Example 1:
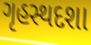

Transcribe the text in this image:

ગૃહસ્થદશા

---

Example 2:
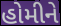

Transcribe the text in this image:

હોમીને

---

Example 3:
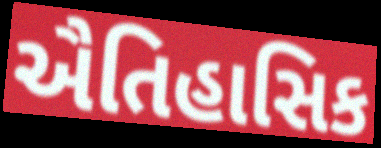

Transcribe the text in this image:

ઐતિહાસિક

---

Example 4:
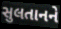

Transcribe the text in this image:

સુલતાનને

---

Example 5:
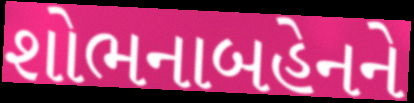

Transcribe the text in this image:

શોભનાબહેનને